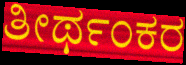
ತೀರ್ಥಂಕರ